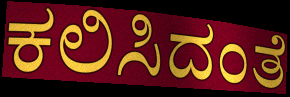
ಕಲಿಸಿದಂತೆ